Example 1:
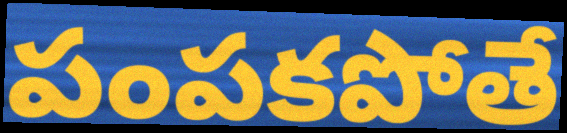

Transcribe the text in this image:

పంపకపోతే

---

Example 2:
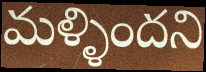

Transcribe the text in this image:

మళ్ళిందని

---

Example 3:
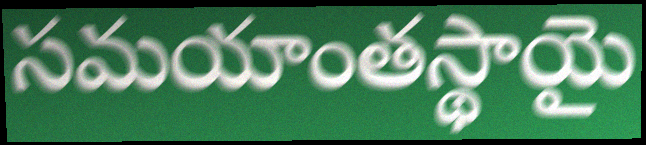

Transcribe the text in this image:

సమయాంతస్థాయై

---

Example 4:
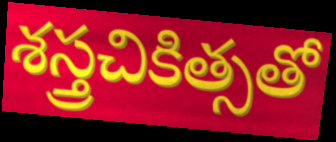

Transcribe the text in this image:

శస్త్రచికిత్సతో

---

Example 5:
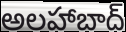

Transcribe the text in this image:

అలహాబాద్